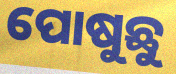
ପୋଷୁଛୁ